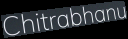
Chitrabhanu